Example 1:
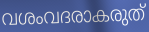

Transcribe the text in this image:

വശംവദരാകരുത്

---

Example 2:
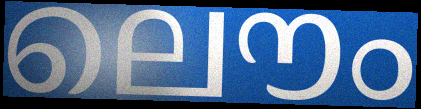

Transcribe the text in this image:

ലൌം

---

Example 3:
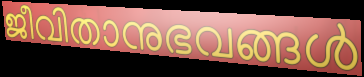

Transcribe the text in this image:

ജീവിതാനുഭവങ്ങൾ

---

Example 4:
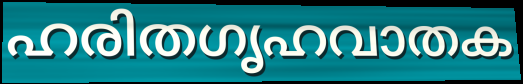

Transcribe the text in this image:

ഹരിതഗൃഹവാതക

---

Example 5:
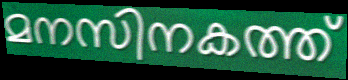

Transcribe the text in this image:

മനസിനകത്ത്